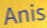
Anis